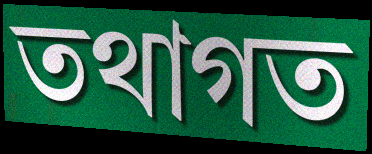
তথাগত